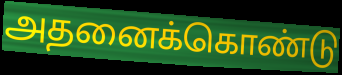
அதனைக்கொண்டு